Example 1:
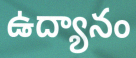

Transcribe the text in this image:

ఉద్యానం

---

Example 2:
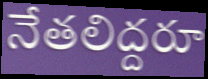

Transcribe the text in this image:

నేతలిద్దరూ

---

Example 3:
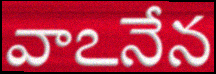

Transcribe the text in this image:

వాఽనేన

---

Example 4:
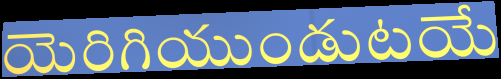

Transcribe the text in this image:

యెరిగియుండుటయే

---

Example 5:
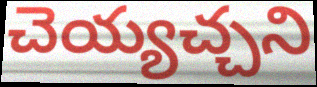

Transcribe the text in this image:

చెయ్యచ్చని